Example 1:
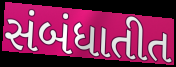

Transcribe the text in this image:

સંબંધાતીત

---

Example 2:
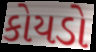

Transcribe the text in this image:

કોયડો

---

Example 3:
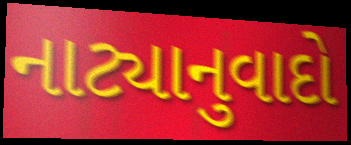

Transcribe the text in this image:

નાટ્યાનુવાદો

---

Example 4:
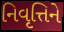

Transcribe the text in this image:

નિવૃત્તિને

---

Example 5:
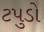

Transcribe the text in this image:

ટપુડો